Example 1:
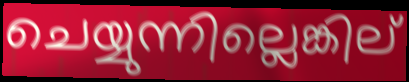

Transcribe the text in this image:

ചെയ്യുന്നില്ലെങ്കില്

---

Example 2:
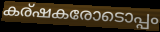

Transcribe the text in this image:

കര്ഷകരോടൊപ്പം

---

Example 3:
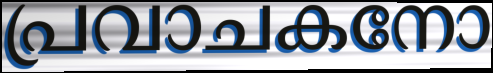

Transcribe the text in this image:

പ്രവാചകനോ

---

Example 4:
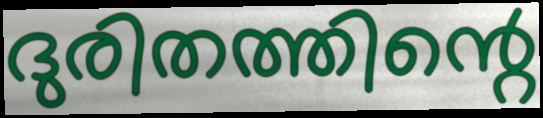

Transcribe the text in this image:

ദുരിതത്തിന്റെ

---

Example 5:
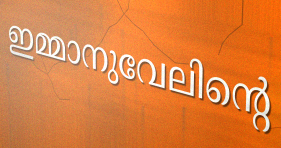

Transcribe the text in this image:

ഇമ്മാനുവേലിന്റെ